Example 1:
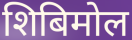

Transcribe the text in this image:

शिबिमोल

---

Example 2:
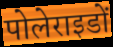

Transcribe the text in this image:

पोलेराइडों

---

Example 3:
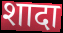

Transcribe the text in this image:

शादा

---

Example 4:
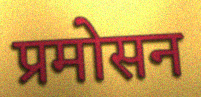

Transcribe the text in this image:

प्रमोसन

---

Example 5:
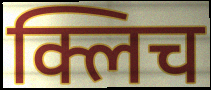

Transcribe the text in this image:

क्लिच